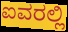
ಐವರಲ್ಲಿ